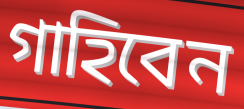
গাহিবেন